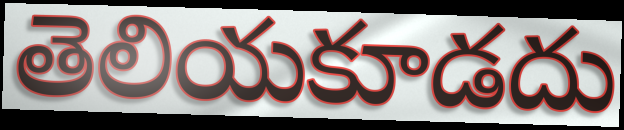
తెలియకూడదు